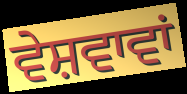
ਵੇਸ਼ਵਾਵਾਂ